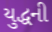
યુદ્ધની